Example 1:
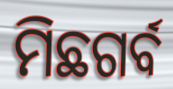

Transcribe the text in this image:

ମିଛଗର୍ବ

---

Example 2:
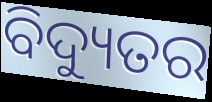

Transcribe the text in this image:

ବିଦ୍ୟୁତର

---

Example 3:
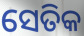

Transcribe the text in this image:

ସେତିକ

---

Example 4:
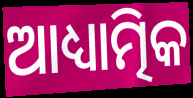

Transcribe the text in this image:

ଆଧ୍ୟାତ୍ମିକ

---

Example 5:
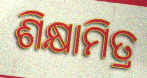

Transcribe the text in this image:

ଶିକ୍ଷାମିତ୍ର